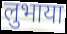
लुभाया